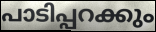
പാടിപ്പറക്കും